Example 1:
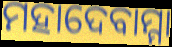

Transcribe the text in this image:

ମହାଦେବାମ୍ମା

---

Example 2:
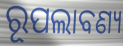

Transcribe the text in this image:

ରୂପଲାବଣ୍ୟ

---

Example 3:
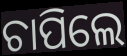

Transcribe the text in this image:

ଚାପିଲେ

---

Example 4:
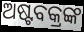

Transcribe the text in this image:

ଅଷ୍ଟବକ୍ରଙ୍କ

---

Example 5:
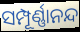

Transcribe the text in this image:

ସମ୍ପୂର୍ଣ୍ଣାନନ୍ଦ